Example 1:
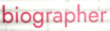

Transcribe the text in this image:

biographer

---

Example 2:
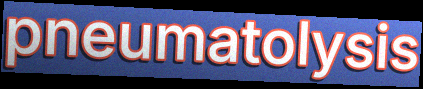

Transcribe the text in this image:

pneumatolysis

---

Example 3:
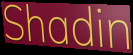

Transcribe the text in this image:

Shadin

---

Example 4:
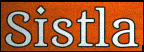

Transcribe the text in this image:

Sistla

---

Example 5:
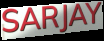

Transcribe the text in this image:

SARJAY